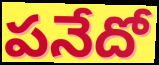
పనేదో